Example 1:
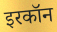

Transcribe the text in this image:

इरकॉन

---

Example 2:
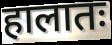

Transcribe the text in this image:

हालातः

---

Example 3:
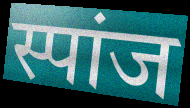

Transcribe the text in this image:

स्पांज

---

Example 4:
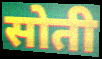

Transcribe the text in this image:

सोती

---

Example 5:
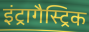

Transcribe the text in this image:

इंट्रागैस्ट्रिक